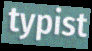
typist